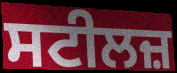
ਸਟੀਲਜ਼